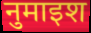
नुमाइश